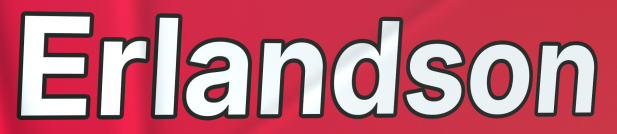
Erlandson